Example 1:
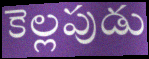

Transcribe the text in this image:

కెల్లపుడు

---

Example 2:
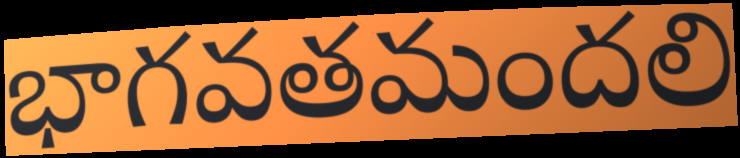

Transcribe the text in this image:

భాగవతమందలి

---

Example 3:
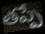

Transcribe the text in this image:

తప్పే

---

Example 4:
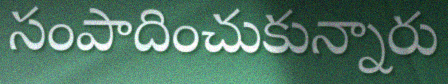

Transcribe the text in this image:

సంపాదించుకున్నారు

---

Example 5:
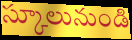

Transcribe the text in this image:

స్కూలునుండి